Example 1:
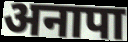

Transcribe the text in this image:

अनापा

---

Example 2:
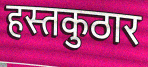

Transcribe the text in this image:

हस्तकुठार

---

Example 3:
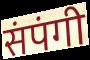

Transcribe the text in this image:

संपंगी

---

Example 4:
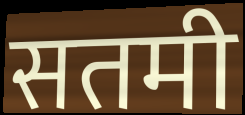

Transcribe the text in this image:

सतमी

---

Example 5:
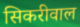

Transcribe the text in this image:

सिकरीवाल